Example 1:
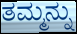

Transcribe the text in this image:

ತಮ್ಮನ್ನು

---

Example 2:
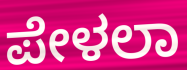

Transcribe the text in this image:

ಪೇಳಲಾ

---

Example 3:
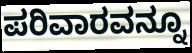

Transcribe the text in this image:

ಪರಿವಾರವನ್ನೂ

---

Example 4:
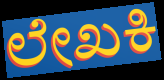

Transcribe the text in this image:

ಲೇಖಕಿ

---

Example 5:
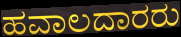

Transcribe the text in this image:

ಹವಾಲದಾರರು